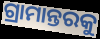
ଗ୍ରାମାନ୍ତରକୁ